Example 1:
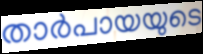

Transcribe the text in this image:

താർപായയുടെ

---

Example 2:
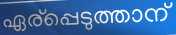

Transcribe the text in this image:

ഏര്പ്പെടുത്താന്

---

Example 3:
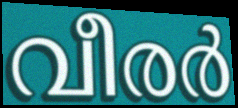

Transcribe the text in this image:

വീരർ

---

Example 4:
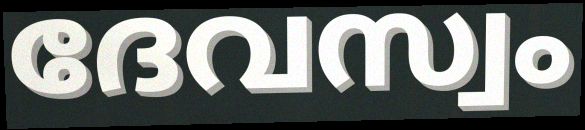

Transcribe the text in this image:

ദേവസ്വം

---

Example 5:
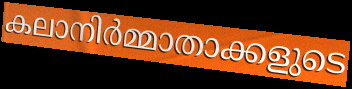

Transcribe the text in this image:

കലാനിർമ്മാതാക്കളുടെ